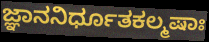
ಜ್ಞಾನನಿರ್ಧೂತಕಲ್ಮಷಾಃ